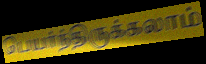
பெயர்ந்திருக்கலாம்